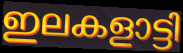
ഇലകളാട്ടി